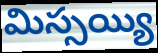
మిస్సయ్యి